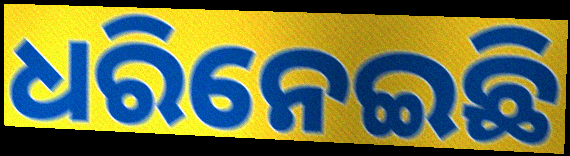
ଧରିନେଇଛି